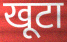
खूटा